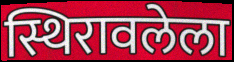
स्थिरावलेला